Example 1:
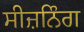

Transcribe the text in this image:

ਸੀਜ਼ਨਿੰਗ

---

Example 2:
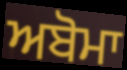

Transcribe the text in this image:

ਅਬੋਮਾ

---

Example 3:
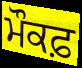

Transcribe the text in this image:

ਮੌਕਫ਼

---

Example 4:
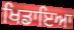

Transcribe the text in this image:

ਖਿਡਾਇਆ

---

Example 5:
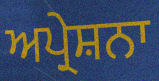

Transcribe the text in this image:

ਅਪ੍ਰੇਸ਼ਨਾ